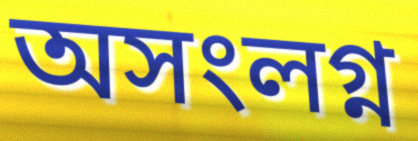
অসংলগ্ন